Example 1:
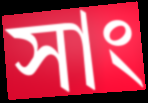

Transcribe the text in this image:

সাং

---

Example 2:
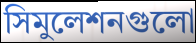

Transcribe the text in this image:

সিমুলেশনগুলো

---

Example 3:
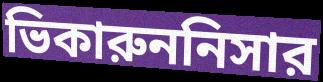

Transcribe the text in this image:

ভিকারুননিসার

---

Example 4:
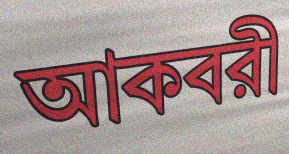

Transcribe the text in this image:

আকবরী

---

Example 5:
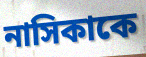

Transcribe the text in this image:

নাসিকাকে